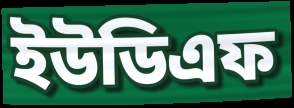
ইউডিএফ